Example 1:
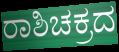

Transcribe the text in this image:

ರಾಶಿಚಕ್ರದ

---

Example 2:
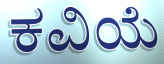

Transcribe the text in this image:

ಕವಿಯೆ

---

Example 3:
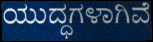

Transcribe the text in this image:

ಯುದ್ಧಗಳಾಗಿವೆ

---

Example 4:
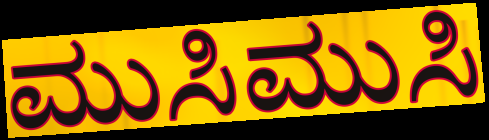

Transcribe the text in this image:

ಮುಸಿಮುಸಿ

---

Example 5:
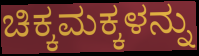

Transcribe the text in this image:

ಚಿಕ್ಕಮಕ್ಕಳನ್ನು